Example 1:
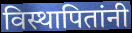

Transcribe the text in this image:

विस्थापितांनी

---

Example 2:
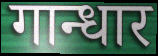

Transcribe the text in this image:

गान्धार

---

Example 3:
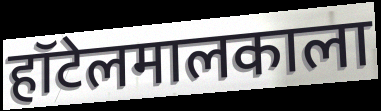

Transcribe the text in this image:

हॉटेलमालकाला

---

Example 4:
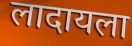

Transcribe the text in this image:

लादायला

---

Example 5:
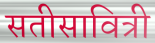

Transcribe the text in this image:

सतीसावित्री